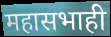
महासभाही